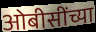
ओबीसींच्या